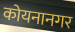
कोयनानगर